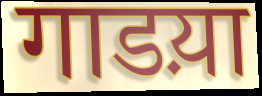
गाडय़ा